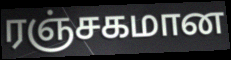
ரஞ்சகமான